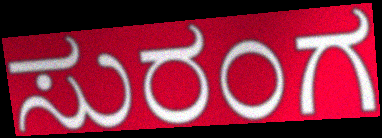
ಸುರಂಗ